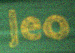
Jeo